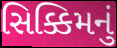
સિક્કિમનું